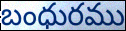
బంధురము